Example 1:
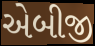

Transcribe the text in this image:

એબીજી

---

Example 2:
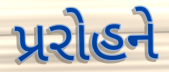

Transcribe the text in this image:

પ્રરોહને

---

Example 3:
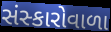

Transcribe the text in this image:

સંસ્કારોવાળા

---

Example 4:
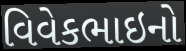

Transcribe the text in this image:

વિવેકભાઇનો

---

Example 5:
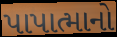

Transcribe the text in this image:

પાપાત્માનો